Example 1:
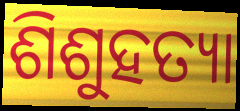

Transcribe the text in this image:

ଶିଶୁହତ୍ୟା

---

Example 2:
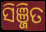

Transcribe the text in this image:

ସିଞ୍ଜିତ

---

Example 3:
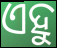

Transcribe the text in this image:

ଏହୁ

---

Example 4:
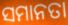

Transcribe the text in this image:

ସମାନତା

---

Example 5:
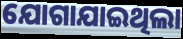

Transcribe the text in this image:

ଯୋଗାଯାଇଥିଲା